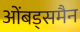
ओंबड्समैन